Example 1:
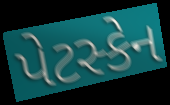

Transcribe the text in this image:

પેટસ્કેન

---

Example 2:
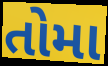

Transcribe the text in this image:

તોમા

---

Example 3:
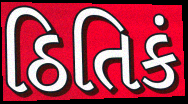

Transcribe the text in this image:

ઠિતિકં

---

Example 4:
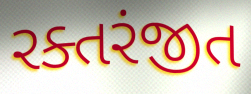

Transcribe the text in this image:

રક્તરંજીત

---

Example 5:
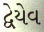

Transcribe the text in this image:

દ્વેયેવ